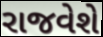
રાજવેશે